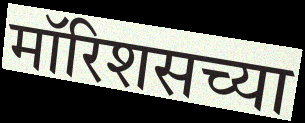
मॉरिशसच्या